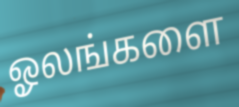
ஓலங்களை